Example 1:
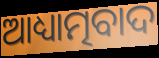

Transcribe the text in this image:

ଆଧ୍ୟାତ୍ମବାଦ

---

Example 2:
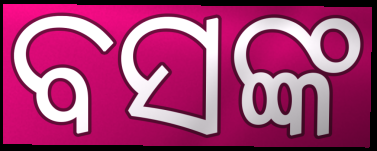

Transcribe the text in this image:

ବସଙ୍କ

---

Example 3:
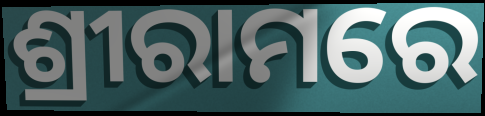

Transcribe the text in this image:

ଶ୍ରୀରାମରେ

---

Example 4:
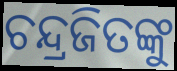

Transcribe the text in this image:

ଚନ୍ଦ୍ରଜିତଙ୍କୁ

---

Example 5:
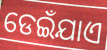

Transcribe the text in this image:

ଡେଇଁଯାଏ